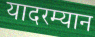
यादरम्यान